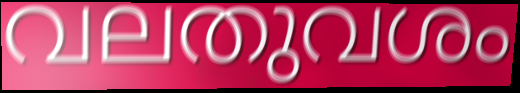
വലതുവശം